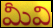
మీవి